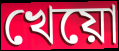
খেয়ো